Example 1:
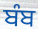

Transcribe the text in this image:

ਬੰਬ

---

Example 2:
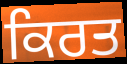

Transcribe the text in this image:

ਕਿਰਤ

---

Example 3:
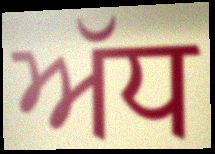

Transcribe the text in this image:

ਅੱਧ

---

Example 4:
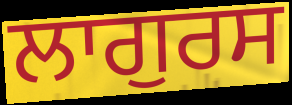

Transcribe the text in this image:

ਲਾਗੁਰਸ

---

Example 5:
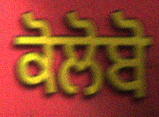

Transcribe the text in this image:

ਕੋਲੋਬੋ